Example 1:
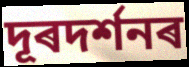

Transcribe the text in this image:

দূৰদৰ্শনৰ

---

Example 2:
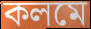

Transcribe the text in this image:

কলমে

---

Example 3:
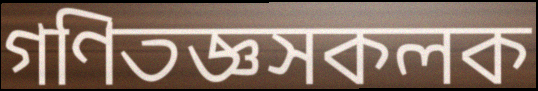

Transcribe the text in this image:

গণিতজ্ঞসকলক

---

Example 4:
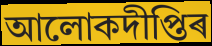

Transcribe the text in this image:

আলোকদীপ্তিৰ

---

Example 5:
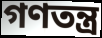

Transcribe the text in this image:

গণতন্ত্ৰ